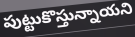
పుట్టుకొస్తున్నాయని